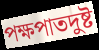
পক্ষপাতদুষ্ট